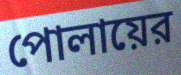
পোলায়ের